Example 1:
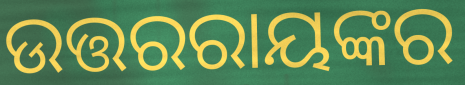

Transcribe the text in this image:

ଉତ୍ତରରାୟଙ୍କର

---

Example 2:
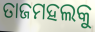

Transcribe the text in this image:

ତାଜମହଲକୁ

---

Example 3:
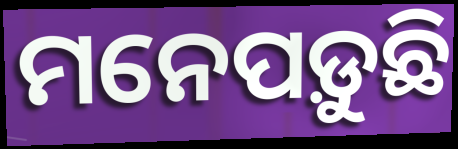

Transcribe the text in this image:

ମନେପଡ଼ୁଛି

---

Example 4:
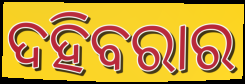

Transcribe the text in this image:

ଦହିବରାର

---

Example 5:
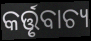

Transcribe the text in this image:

କର୍ତ୍ତୃବାଚ୍ୟ